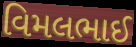
વિમલભાઈ